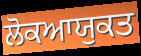
ਲੋਕਆਯੁਕਤ